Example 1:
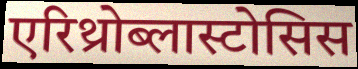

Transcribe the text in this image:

एरिथ्रोब्लास्टोसिस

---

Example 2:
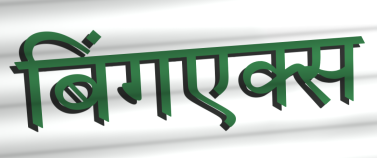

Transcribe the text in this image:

बिंगएक्स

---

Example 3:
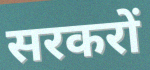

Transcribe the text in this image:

सरकरों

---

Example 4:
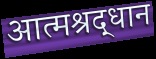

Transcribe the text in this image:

आत्मश्रद्धान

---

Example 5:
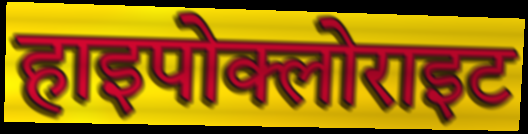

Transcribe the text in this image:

हाइपोक्लोराइट